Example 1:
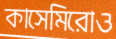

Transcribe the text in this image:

কাসেমিরোও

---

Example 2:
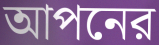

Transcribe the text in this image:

আপনের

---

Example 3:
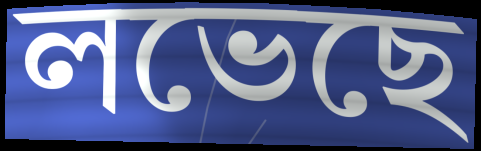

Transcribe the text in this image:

লভেছে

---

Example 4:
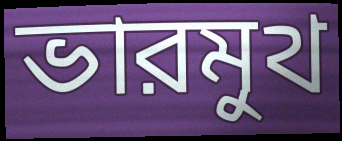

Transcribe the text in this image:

ভারমুথ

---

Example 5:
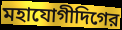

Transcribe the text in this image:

মহাযোগীদিগের